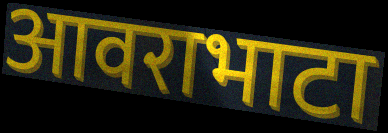
आवराभाटा